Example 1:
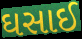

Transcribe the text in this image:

ઘસાઈ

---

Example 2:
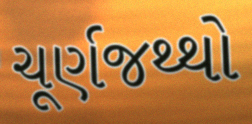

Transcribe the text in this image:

ચૂર્ણજથ્થો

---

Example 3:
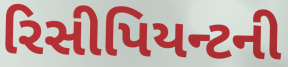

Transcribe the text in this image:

રિસીપિયન્ટની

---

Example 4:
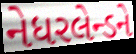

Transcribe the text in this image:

નેધરલેન્ડને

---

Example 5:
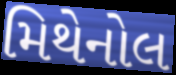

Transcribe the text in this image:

મિથેનોલ